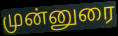
முன்னுரை